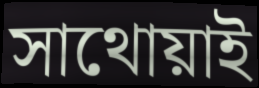
সাথোয়াই